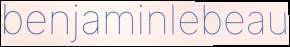
benjaminlebeau